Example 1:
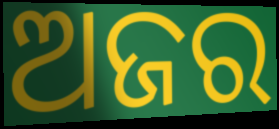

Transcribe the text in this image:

ଅଜର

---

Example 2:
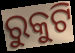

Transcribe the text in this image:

ରୁକୁଟି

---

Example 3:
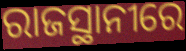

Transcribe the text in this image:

ରାଜସ୍ଥାନୀରେ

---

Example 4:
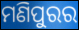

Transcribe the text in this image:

ମଣିପୁରର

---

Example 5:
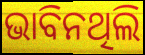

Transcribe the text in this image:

ଭାବିନଥିଲି